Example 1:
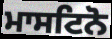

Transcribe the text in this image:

ਮਾਸਟਿਨੋ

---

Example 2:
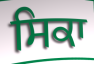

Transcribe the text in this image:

ਸਿਕਾ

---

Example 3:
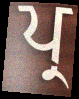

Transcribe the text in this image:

ਪ੍ਰ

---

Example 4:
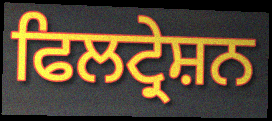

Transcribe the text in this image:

ਫਿਲਟ੍ਰੇਸ਼ਨ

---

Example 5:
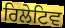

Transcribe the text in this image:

ਰਿਲੇਟਿਵ